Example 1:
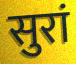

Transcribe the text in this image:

सुरां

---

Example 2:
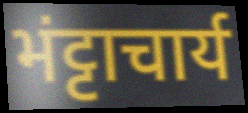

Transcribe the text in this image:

भंट्टाचार्य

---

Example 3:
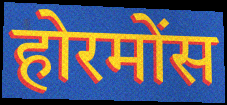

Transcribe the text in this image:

होरमोंस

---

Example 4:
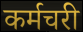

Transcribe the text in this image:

कर्मचरी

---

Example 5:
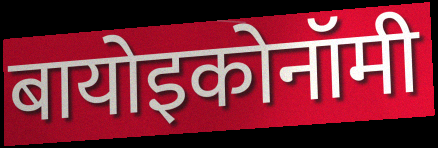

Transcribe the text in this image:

बायोइकोनॉमी